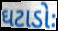
ઘટાડોઃ